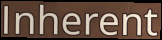
Inherent